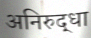
अनिरुद्धा